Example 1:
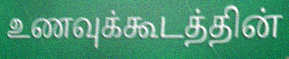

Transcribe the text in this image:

உணவுக்கூடத்தின்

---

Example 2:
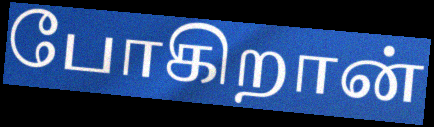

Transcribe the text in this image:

போகிறான்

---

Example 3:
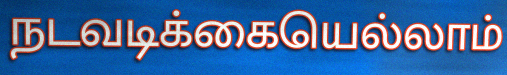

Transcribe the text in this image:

நடவடிக்கையெல்லாம்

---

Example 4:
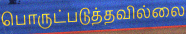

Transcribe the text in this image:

பொருட்படுத்தவில்லை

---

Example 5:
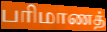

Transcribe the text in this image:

பரிமாணத்